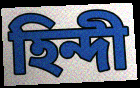
হিন্দী